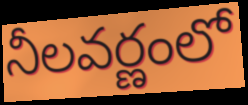
నీలవర్ణంలో